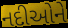
નદીઓને